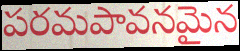
పరమపావనమైన